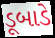
ડૂબાડે